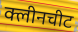
क्लीनचीट